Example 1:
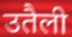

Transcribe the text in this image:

उतैली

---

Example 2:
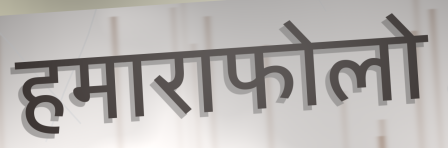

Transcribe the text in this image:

हमाराफोलो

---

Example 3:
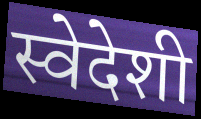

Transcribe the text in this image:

स्वेदेशी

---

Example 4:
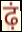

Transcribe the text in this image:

ढ़ं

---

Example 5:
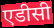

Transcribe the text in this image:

एडीसी